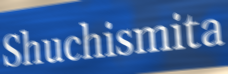
Shuchismita